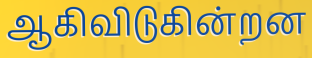
ஆகிவிடுகின்றன